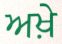
ਅਖ਼ੇ